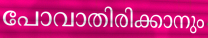
പോവാതിരിക്കാനും